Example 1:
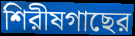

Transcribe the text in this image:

শিরীষগাছের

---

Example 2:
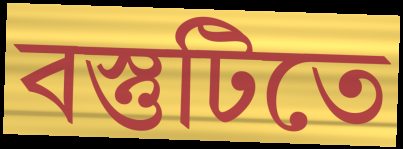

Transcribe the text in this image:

বস্তুটিতে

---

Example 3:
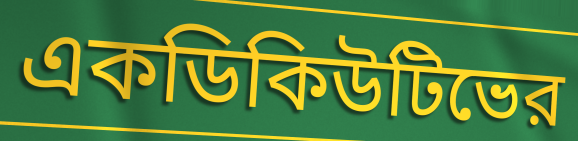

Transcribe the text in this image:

একডিকিউটিভের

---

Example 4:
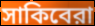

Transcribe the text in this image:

সাকিবেরা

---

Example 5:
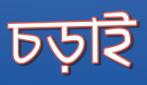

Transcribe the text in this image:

চড়াই